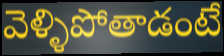
వెళ్ళిపోతాడంటే